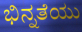
ಭಿನ್ನತೆಯು